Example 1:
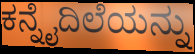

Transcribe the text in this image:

ಕನ್ನೈದಿಲೆಯನ್ನು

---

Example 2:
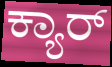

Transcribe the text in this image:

ಕ್ಯಾರ್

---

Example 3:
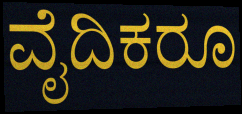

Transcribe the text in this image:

ವೈದಿಕರೂ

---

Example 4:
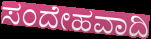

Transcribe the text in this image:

ಸಂದೇಹವಾದಿ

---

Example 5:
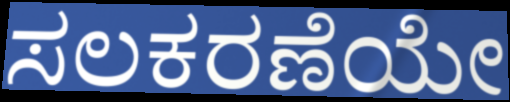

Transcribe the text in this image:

ಸಲಕರಣೆಯೇ